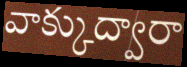
వాక్కుద్వారా